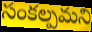
సంకల్పమని